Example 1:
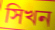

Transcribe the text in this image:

সিখন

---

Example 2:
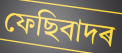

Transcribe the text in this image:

ফেছিবাদৰ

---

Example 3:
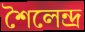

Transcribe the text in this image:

শৈলেন্দ্ৰ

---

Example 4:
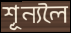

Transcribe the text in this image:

শূন্যলৈ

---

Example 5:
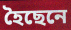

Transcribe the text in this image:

হৈছেনে